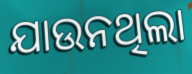
ଯାଉନଥିଲା